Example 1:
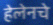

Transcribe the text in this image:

हेलेनचे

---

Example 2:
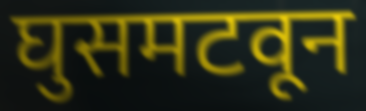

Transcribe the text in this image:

घुसमटवून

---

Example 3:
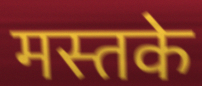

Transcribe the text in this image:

मस्तके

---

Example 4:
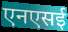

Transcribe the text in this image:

एनएसई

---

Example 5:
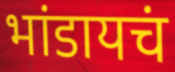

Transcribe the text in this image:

भांडायचं